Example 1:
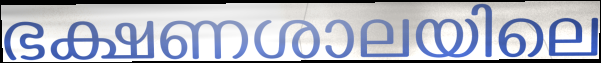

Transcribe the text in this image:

ഭക്ഷണശാലയിലെ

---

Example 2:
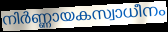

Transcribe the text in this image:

നിർണ്ണായകസ്വാധീനം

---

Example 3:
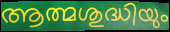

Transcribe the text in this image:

ആത്മശുദ്ധിയും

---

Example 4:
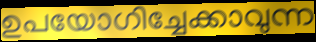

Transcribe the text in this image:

ഉപയോഗിച്ചേക്കാവുന്ന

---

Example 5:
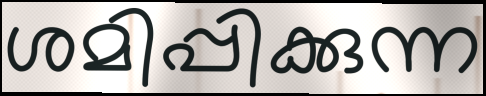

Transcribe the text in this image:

ശമിപ്പിക്കുന്ന